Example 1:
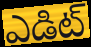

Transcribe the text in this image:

ఎడిట్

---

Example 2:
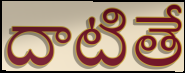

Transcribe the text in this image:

దాటితే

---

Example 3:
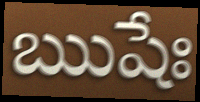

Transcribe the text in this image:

ఋషేః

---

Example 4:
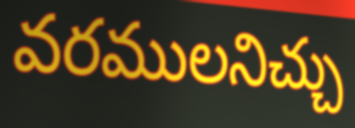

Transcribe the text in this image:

వరములనిచ్చు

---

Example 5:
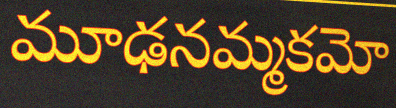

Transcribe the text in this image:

మూఢనమ్మకమో